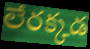
లేరక్కడ